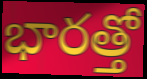
భారత్తో